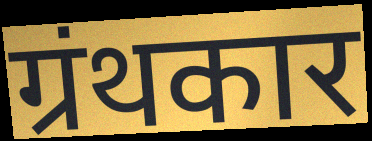
ग्रंथकार